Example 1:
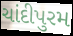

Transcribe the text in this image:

ચાંદીપુરમ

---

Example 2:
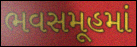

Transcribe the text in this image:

ભવસમૂહમાં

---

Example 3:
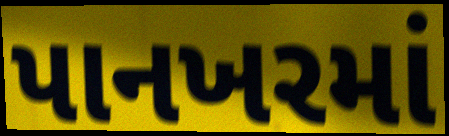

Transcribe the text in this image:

પાનખરમાં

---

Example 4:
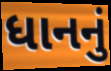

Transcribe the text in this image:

ધાનનું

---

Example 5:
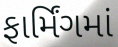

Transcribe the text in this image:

ફાર્મિંગમાં